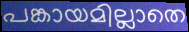
പങ്കായമില്ലാതെ